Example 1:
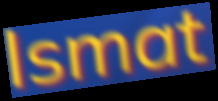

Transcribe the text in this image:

Ismat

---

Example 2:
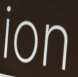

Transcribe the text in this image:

ion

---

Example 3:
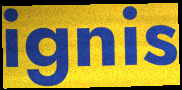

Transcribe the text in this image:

ignis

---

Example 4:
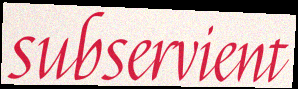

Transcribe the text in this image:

subservient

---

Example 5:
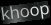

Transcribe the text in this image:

khoop